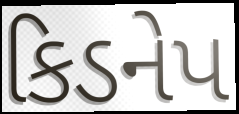
કિડનેપ